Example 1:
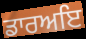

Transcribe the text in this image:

ਡਾਰਅਇ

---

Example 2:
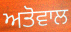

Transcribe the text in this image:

ਅਤੋਵਾਲ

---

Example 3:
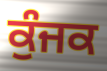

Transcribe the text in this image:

ਕੁੰਜਕ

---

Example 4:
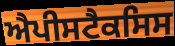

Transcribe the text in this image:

ਐਪੀਸਟੈਕਸਿਸ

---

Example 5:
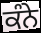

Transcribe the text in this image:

ਕੰਨੇ